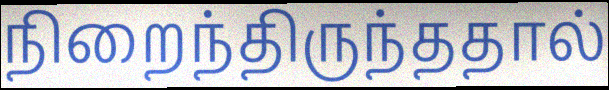
நிறைந்திருந்ததால்